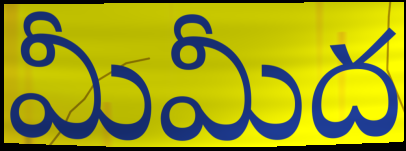
మీమీద